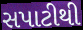
સપાટીથી